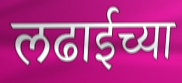
लढाईच्या